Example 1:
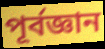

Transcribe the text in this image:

পূর্বজ্ঞান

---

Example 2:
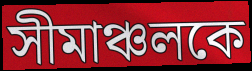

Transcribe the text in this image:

সীমাঞ্চলকে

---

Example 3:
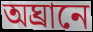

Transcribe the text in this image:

অঘ্রানে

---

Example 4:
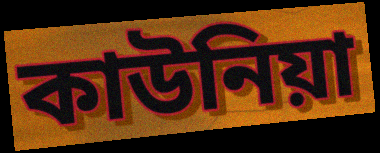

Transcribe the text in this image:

কাউনিয়া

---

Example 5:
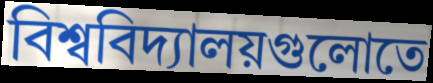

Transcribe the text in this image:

বিশ্ববিদ্যালয়গুলোতে